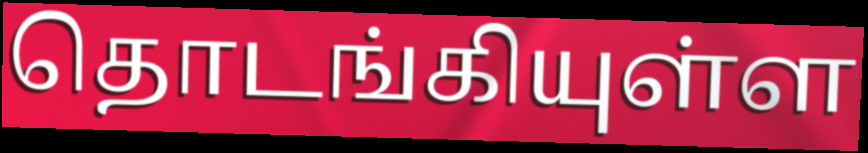
தொடங்கியுள்ள